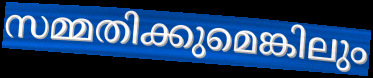
സമ്മതിക്കുമെങ്കിലും